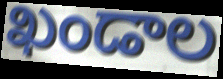
ఖండాల